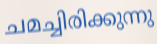
ചമച്ചിരിക്കുന്നു